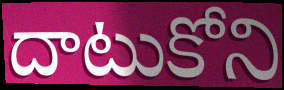
దాటుకోని